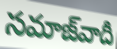
సమాజ్‌వాదీ